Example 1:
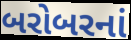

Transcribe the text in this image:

બરોબરનાં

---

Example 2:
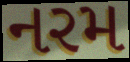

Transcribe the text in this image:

નરમ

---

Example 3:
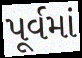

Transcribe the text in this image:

પૂર્વમાં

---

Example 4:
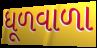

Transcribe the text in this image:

ધૂળવાળા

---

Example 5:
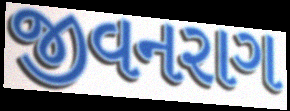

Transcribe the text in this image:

જીવનરાગ